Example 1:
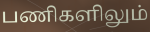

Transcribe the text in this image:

பணிகளிலும்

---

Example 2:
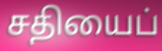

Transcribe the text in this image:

சதியைப்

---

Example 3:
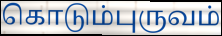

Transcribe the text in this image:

கொடும்புருவம்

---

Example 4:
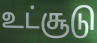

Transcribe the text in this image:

உட்சூடு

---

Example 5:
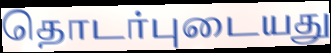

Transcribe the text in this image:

தொடர்புடையது